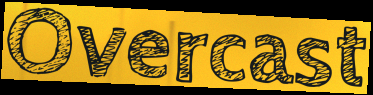
Overcast